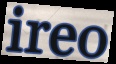
ireo